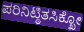
ಪರಿನಿಟ್ಠಿತಸಿಕ್ಖೋ